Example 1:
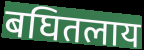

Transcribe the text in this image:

बघितलाय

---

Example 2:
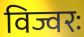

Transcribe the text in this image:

विज्वरः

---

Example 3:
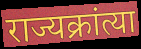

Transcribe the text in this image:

राज्यक्रांत्या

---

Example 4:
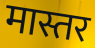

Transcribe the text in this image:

मास्तर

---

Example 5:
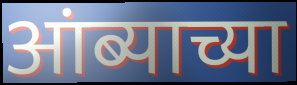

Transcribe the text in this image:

आंब्याच्या